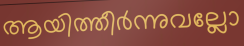
ആയിത്തീർന്നുവല്ലോ